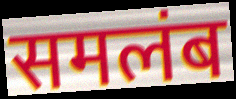
समलंब